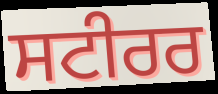
ਸਟੀਰਰ